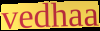
vedhaa